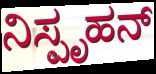
ನಿಸ್ಪೃಹನ್